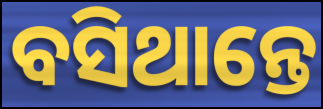
ବସିଥାନ୍ତେ